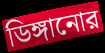
ডিঙ্গানোর